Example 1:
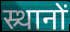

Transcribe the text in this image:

स्र्थानों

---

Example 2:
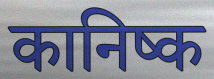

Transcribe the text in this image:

कानिष्क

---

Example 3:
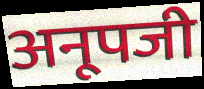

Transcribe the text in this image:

अनूपजी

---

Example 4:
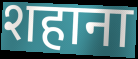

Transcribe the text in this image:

शहाना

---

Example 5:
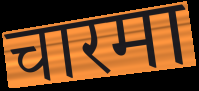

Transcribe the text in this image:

चारमा